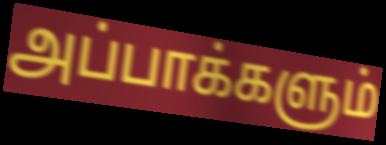
அப்பாக்களும்